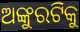
ଅଙ୍କୁରଟିକୁ